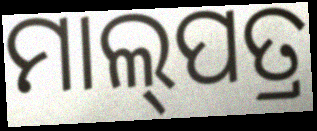
ମାଲ୍‌ପତ୍ର